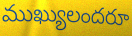
ముఖ్యులందరూ